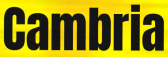
Cambria